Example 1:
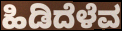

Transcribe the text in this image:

ಹಿಡಿದೆಳೆವ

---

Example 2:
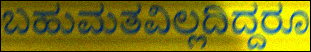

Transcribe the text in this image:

ಬಹುಮತವಿಲ್ಲದಿದ್ದರೂ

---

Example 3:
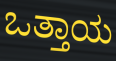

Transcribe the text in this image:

ಒತ್ತಾಯ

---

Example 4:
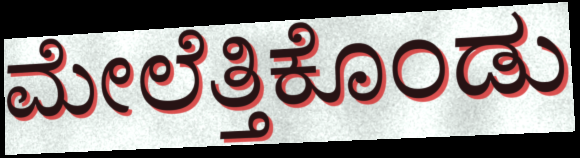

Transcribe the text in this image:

ಮೇಲೆತ್ತಿಕೊಂಡು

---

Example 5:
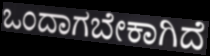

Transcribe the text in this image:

ಒಂದಾಗಬೇಕಾಗಿದೆ